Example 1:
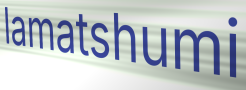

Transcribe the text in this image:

lamatshumi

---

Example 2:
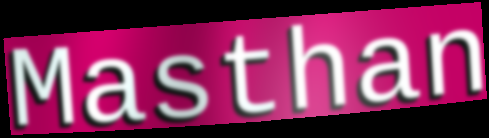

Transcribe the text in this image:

Masthan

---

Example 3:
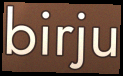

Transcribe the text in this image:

birju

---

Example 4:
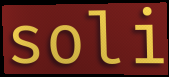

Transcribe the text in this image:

soli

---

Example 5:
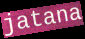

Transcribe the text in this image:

jatana